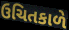
ઉચિતકાળે